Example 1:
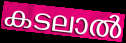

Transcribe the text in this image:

കടലാൽ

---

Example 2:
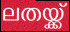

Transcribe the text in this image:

ലതയ്ക്ക്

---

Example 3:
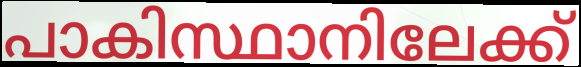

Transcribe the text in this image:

പാകിസ്ഥാനിലേക്ക്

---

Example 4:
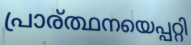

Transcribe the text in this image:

പ്രാര്ത്ഥനയെപ്പറ്റി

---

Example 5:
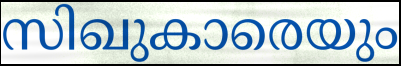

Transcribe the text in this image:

സിഖുകാരെയും